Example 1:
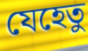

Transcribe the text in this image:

যেহেতু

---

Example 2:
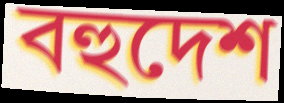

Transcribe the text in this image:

বহুদেশ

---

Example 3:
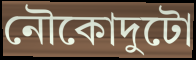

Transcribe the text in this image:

নৌকোদুটো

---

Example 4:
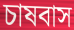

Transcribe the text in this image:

চাষবাস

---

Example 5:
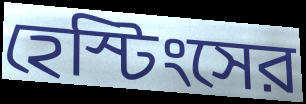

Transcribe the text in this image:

হেস্টিংসের